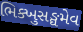
ભિક્ખુસઙ્ઘમેવ